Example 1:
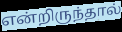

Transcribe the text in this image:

என்றிருந்தால்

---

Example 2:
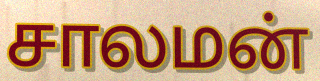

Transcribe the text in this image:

சாலமன்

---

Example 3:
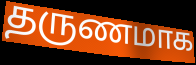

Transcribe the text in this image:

தருணமாக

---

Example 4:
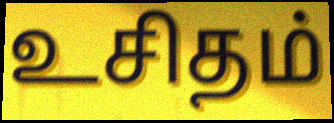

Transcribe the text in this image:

உசிதம்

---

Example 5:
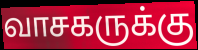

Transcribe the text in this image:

வாசகருக்கு